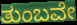
ತುಂಬವೇ